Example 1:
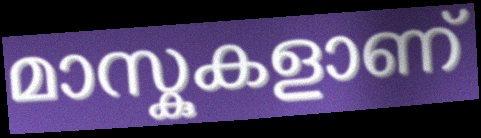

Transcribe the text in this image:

മാസ്കുകളാണ്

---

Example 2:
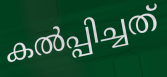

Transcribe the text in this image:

കൽപ്പിച്ചത്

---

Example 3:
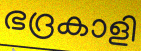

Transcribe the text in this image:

ഭദ്രകാളി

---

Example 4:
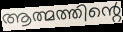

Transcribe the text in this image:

ആത്മത്തിന്റെ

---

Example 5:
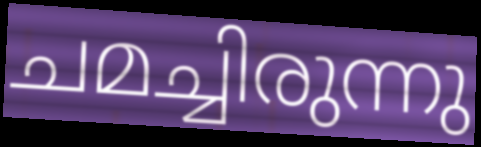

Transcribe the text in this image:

ചമച്ചിരുന്നു